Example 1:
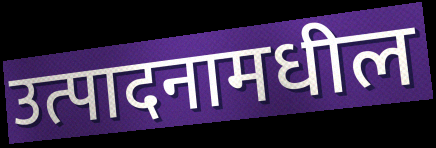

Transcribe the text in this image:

उत्पादनामधील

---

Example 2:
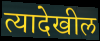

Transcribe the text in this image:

त्यादेखील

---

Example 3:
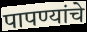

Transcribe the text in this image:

पापण्यांचे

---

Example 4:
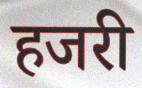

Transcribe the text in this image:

हजरी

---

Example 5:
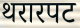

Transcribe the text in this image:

थरारपट